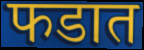
फडात